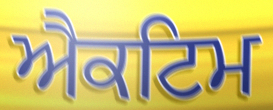
ਐਕਟਿਮ